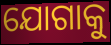
ଯୋଗାକୁ